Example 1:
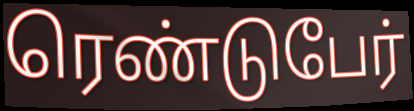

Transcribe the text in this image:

ரெண்டுபேர்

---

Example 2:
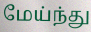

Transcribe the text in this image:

மேய்ந்து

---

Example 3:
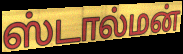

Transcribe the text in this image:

ஸ்டால்மன்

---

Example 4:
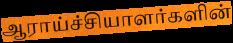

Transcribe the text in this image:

ஆராய்ச்சியாளர்களின்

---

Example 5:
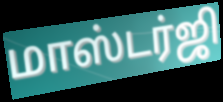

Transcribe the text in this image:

மாஸ்டர்ஜி